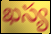
ఖస్య